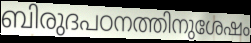
ബിരുദപഠനത്തിനുശേഷം